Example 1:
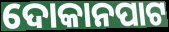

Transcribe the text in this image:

ଦୋକାନପାଟ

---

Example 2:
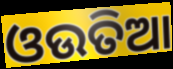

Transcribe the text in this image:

ଓଉତିଆ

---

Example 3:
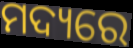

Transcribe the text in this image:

ମଦ୍ୟରେ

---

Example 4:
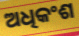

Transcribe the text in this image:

ଅଧିକଂଶ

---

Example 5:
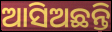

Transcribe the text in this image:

ଆସିଅଛନ୍ତି